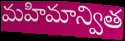
మహిమాన్విత